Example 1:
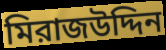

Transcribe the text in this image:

মিরাজউদ্দিন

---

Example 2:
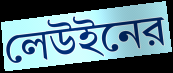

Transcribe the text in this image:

লেউইনের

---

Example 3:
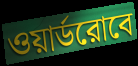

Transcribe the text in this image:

ওয়ার্ডরোবে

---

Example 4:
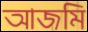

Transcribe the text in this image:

আজমি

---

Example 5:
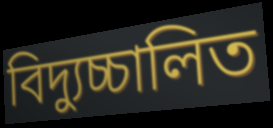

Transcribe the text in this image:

বিদ্যুচ্চালিত